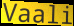
Vaali